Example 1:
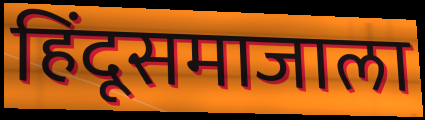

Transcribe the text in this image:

हिंदूसमाजाला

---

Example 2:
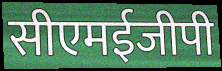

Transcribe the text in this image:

सीएमईजीपी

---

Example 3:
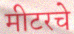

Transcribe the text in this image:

मीटरचे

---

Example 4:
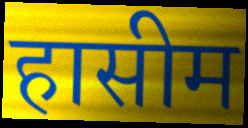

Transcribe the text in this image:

हासीम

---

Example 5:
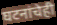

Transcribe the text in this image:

घटनांचेही